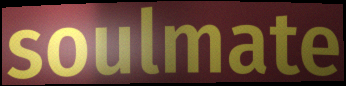
soulmate